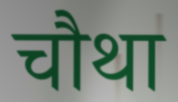
चौथा